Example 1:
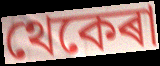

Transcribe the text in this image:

থেকেৰা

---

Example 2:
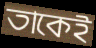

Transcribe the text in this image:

তাকেই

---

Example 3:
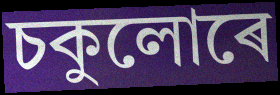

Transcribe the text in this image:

চকুলোৰে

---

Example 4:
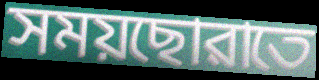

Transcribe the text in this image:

সময়ছোৱাতে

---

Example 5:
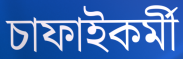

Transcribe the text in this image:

চাফাইকৰ্মী